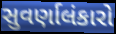
સુવર્ણાલંકારો